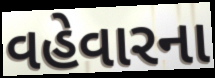
વહેવારના